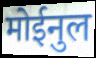
मोईनुल